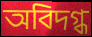
অবিদগ্ধ